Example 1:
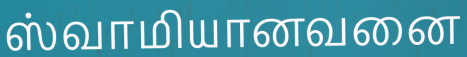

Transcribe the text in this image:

ஸ்வாமியானவனை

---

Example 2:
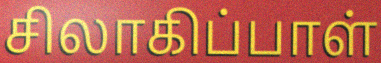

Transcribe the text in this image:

சிலாகிப்பாள்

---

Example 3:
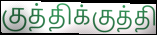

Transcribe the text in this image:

குத்திக்குத்தி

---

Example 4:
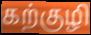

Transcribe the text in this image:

கற்குழி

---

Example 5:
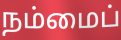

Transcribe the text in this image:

நம்மைப்